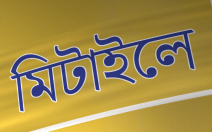
মিটাইলে